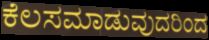
ಕೆಲಸಮಾಡುವುದರಿಂದ